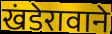
खंडेरावाने